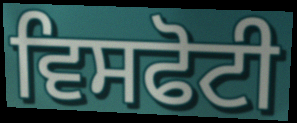
ਵਿਸਫੋਟੀ